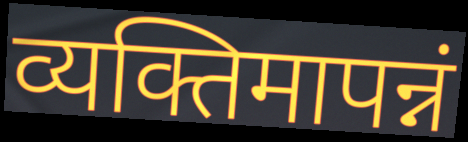
व्यक्तिमापन्नं